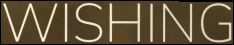
WISHING